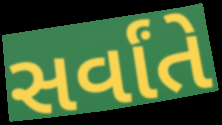
સર્વાંતે